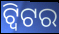
ଟ୍ୱିଟର